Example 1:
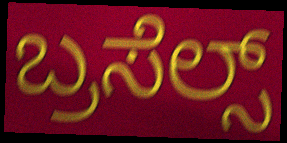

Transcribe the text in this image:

ಬ್ರಸೆಲ್ಸ್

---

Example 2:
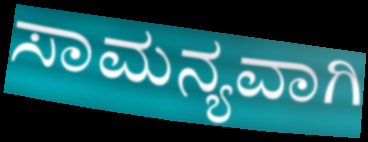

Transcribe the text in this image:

ಸಾಮನ್ಯವಾಗಿ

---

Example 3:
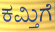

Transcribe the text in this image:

ಕಮ್ತಿಗೆ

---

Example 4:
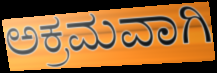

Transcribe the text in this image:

ಅಕ್ರಮವಾಗಿ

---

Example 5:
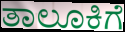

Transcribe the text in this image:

ತಾಲೂಕಿಗೆ